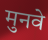
मुनवे